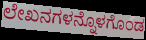
ಲೇಖನಗಳನ್ನೊಳಗೊಂಡ